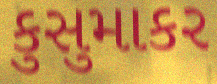
કુસુમાકર